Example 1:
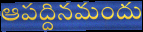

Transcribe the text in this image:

ఆపద్దినమందు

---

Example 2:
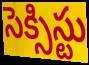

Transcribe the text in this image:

సెక్సిస్టు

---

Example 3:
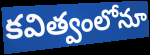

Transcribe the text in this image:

కవిత్వంలోనూ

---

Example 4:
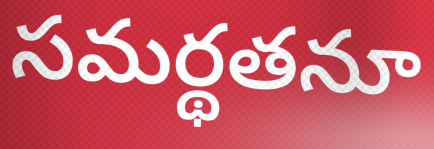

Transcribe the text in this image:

సమర్థతనూ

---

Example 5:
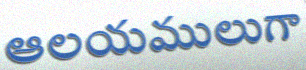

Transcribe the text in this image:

ఆలయములుగా